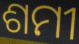
ଶମୀ